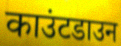
काउंटडाउन